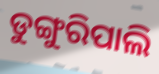
ଡୁଙ୍ଗୁରିପାଲି